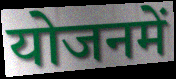
योजनमें